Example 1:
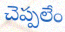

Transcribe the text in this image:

చెప్పలేం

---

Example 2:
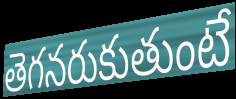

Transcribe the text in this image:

తెగనరుకుతుంటే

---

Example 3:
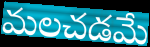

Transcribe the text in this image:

మలచడమే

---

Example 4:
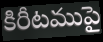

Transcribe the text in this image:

కిరీటముపై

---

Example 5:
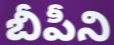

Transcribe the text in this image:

బీపీని